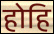
होहि